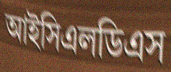
আইসিএলডিএস